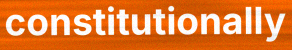
constitutionally